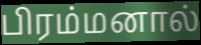
பிரம்மனால்